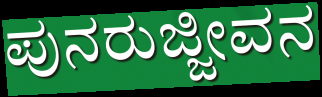
ಪುನರುಜ್ಜೀವನ